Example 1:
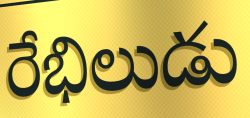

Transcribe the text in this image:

రేభిలుడు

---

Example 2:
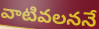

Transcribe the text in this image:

వాటివలననే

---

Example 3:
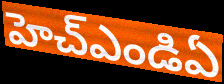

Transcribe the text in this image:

హెచ్ఎండిఏ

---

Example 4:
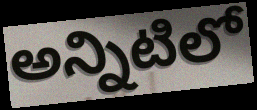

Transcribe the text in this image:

అన్నిటిలో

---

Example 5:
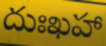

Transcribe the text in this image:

దుఃఖహా